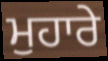
ਮੁਹਾਰੇ